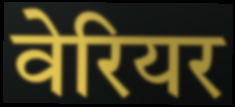
वेरियर